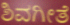
ಶಿವಗೀತೆ